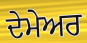
ਦੇਮੇਅਰ